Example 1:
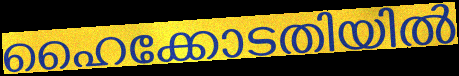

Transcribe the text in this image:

ഹൈക്കോടതിയിൽ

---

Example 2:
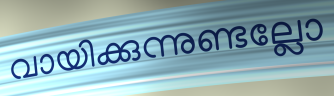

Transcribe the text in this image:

വായിക്കുന്നുണ്ടല്ലോ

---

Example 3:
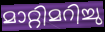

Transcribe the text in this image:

മാറ്റിമറിച്ചു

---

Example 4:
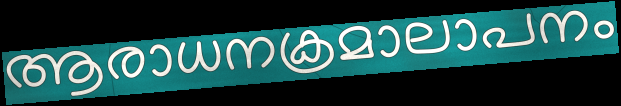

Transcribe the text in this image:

ആരാധനക്രമാലാപനം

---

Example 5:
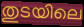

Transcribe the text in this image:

തുടയിലെ